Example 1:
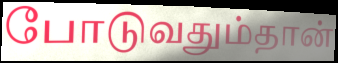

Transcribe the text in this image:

போடுவதும்தான்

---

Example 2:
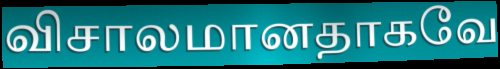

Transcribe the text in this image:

விசாலமானதாகவே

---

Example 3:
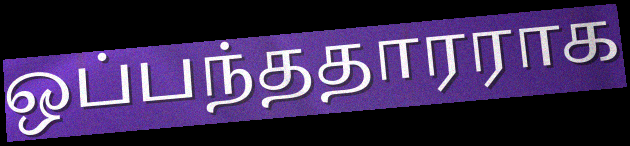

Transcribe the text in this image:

ஒப்பந்ததாரராக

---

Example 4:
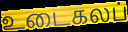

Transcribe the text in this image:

உடைகலப்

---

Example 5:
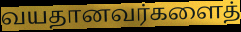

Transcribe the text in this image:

வயதானவர்களைத்